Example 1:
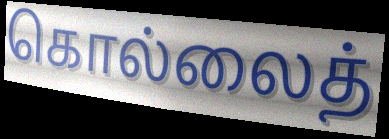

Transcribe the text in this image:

கொல்லைத்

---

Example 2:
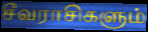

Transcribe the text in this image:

சீவராசிகளும்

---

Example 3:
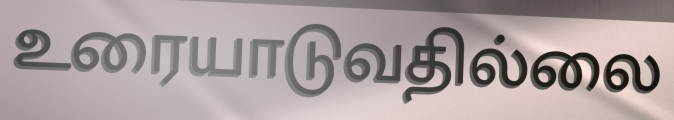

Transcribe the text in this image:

உரையாடுவதில்லை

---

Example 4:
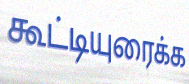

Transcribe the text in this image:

கூட்டியுரைக்க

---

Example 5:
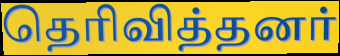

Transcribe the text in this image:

தெரிவித்தனர்